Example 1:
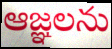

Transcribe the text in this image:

ఆజ్ఞలను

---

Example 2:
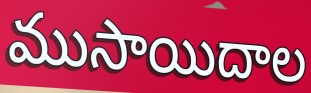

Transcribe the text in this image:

ముసాయిదాల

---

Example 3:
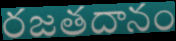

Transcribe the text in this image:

రజతదానం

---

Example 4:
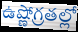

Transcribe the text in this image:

ఉష్ణోగ్రతల్లో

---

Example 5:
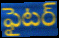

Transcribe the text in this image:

ఫైటర్